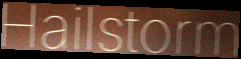
Hailstorm